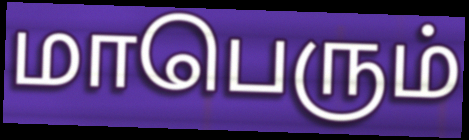
மாபெரும்